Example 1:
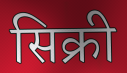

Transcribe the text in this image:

सिक्री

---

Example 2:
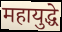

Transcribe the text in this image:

महायुद्धे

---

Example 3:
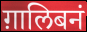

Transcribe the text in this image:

ग़ालिबनं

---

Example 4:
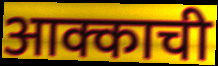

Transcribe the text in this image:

आक्काची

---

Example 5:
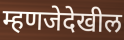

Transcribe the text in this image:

म्हणजेदेखील